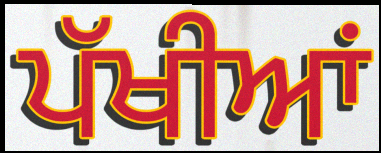
ਪੱਖੀਆਂ